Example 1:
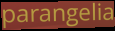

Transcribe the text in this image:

parangelia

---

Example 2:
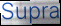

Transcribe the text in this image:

Supra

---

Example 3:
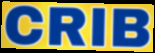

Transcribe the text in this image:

CRIB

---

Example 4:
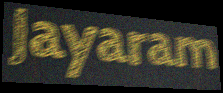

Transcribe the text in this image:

Jayaram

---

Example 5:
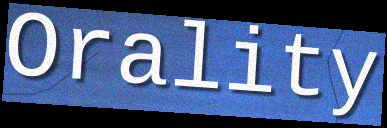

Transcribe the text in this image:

Orality